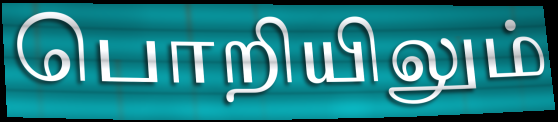
பொறியிலும்